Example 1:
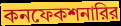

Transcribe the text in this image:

কনফেকশনারির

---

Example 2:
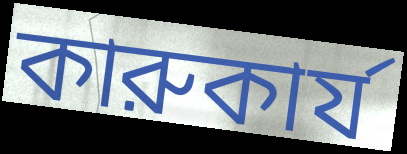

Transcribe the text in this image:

কারুকার্য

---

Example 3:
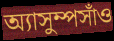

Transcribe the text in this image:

অ্যাসুম্পসাঁও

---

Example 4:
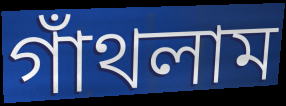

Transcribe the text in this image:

গাঁথলাম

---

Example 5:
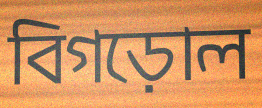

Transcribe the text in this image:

বিগড়োল